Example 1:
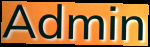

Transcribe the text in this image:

Admin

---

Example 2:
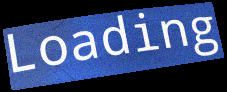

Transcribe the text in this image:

Loading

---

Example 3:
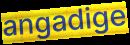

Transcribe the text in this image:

angadige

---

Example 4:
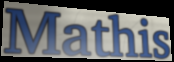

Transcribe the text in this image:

Mathis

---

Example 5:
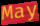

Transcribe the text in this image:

May